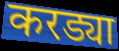
करड्या